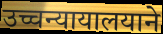
उच्चन्यायालयाने